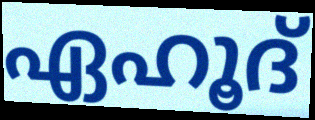
ഏഹൂദ്